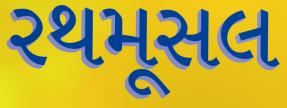
રથમૂસલ